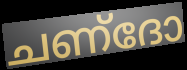
ചണ്ദോ